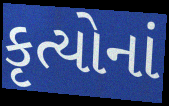
કૃત્યોનાં